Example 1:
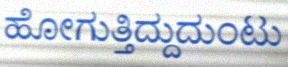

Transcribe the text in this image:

ಹೋಗುತ್ತಿದ್ದುದುಂಟು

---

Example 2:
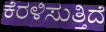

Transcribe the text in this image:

ಕೆರಳಿಸುತ್ತಿದೆ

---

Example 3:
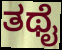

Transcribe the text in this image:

ತಥೈ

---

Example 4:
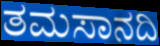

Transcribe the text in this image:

ತಮಸಾನದಿ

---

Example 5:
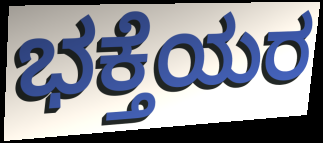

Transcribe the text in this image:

ಭಕ್ತೆಯರ